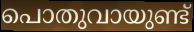
പൊതുവായുണ്ട്